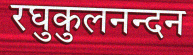
रघुकुलनन्दन